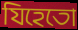
যিহেতো